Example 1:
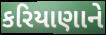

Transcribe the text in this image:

કરિયાણાને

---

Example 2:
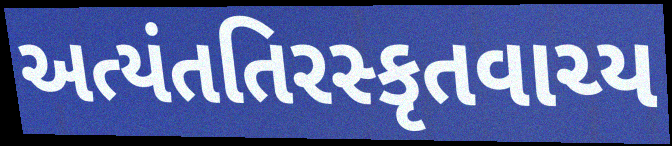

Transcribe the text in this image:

અત્યંતતિરસ્કૃતવાચ્ય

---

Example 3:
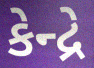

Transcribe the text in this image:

કેન્દ્રે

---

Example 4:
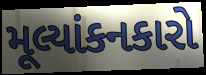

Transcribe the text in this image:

મૂલ્યાંકનકારો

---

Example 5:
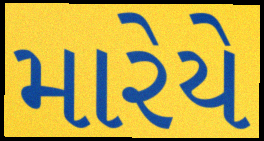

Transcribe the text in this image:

મારેયે